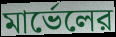
মার্ভেলের